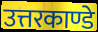
उत्तरकाण्डे